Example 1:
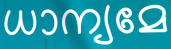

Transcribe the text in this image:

ധാന്യമേ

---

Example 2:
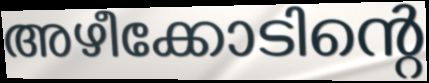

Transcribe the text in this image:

അഴീക്കോടിന്റെ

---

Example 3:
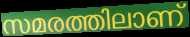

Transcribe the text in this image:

സമരത്തിലാണ്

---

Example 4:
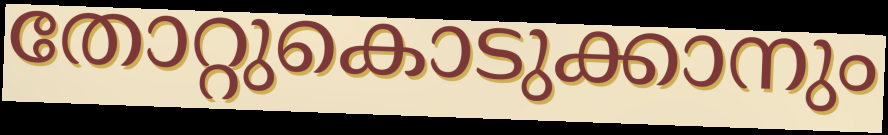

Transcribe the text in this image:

തോറ്റുകൊടുക്കാനും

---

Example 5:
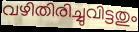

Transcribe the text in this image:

വഴിതിരിച്ചുവിട്ടതും